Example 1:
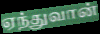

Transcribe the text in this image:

ஏந்துவான்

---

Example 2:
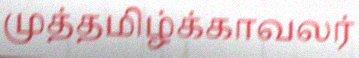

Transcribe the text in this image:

முத்தமிழ்க்காவலர்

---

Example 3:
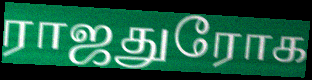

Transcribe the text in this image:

ராஜதுரோக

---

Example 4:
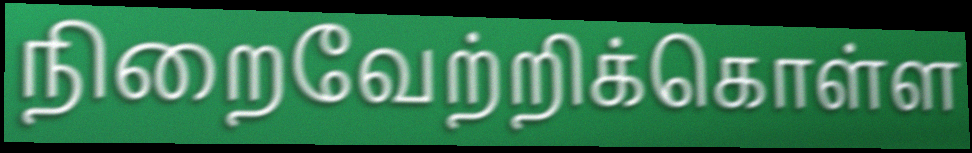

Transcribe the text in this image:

நிறைவேற்றிக்கொள்ள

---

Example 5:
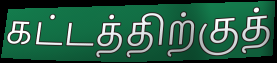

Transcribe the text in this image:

கட்டத்திற்குத்